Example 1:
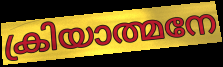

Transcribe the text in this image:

ക്രിയാത്മനേ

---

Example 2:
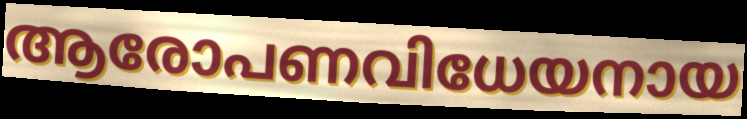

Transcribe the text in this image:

ആരോപണവിധേയനായ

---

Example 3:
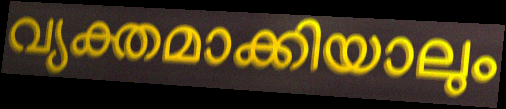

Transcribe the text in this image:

വ്യക്തമാക്കിയാലും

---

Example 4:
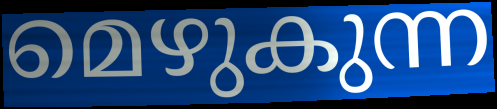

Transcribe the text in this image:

മെഴുകുന്ന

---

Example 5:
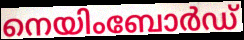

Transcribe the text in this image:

നെയിംബോർഡ്